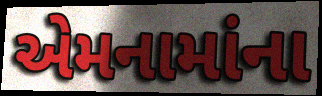
એમનામાંના